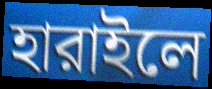
হারাইলে